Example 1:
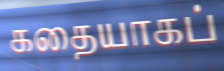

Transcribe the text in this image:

கதையாகப்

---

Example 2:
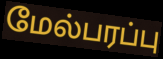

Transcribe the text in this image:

மேல்பரப்பு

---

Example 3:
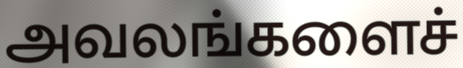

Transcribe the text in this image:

அவலங்களைச்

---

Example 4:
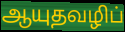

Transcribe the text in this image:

ஆயுதவழிப்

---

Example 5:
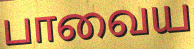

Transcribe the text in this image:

பாவைய